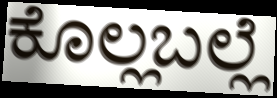
ಕೊಲ್ಲಬಲ್ಲೆ